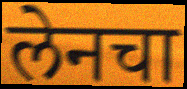
लेनचा